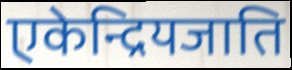
एकेन्द्रियजाति